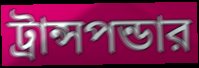
ট্রান্সপন্ডার